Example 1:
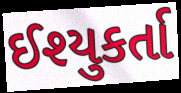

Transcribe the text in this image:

ઈશ્યુકર્તા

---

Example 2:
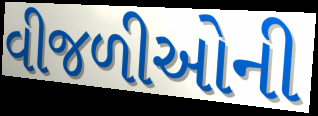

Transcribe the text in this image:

વીજળીઓની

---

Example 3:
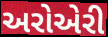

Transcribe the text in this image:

અરોએરી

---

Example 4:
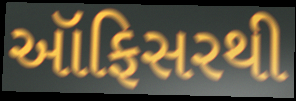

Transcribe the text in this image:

ઑફિસરથી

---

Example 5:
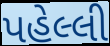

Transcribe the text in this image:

પહેલ્લી